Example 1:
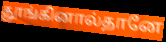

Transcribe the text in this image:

தூங்கினால்தானே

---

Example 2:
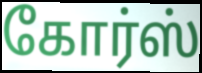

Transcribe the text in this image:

கோர்ஸ்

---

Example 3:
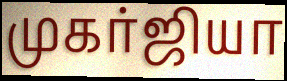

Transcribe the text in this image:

முகர்ஜியா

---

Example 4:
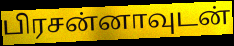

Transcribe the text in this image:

பிரசன்னாவுடன்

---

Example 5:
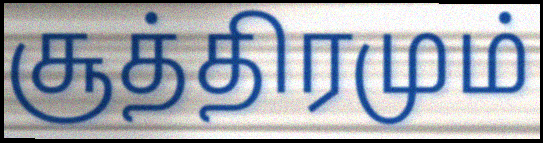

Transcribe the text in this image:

சூத்திரமும்